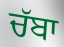
ਚੱਬਾ